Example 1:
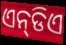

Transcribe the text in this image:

ଏନ୍‌ଡିଏ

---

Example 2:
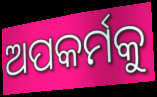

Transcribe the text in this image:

ଅପକର୍ମକୁ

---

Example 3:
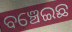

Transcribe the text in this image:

ବଞ୍ଚେଇଛ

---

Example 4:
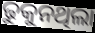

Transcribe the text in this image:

ଢୁକୁନଥିଲା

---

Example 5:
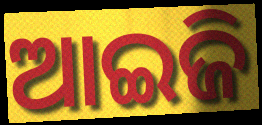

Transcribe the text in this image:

ଆଇଜି